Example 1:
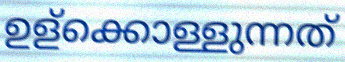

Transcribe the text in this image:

ഉള്ക്കൊള്ളുന്നത്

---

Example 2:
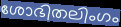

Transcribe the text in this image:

ശോഭിതലിംഗം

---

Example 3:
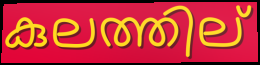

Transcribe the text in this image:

കുലത്തില്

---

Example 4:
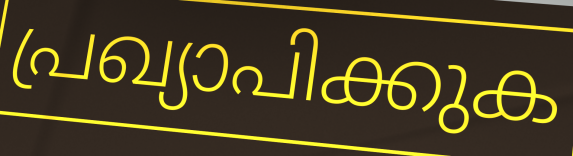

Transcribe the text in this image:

പ്രഖ്യാപിക്കുക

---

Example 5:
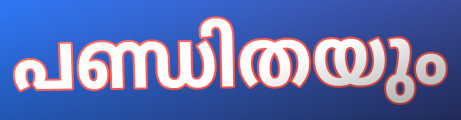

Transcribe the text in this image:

പണ്ഡിതയും